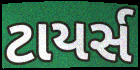
ટાયર્સ